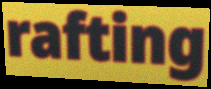
rafting